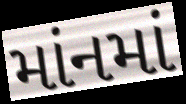
માંનમાં